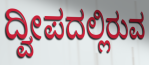
ದ್ವೀಪದಲ್ಲಿರುವ